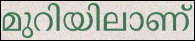
മുറിയിലാണ്